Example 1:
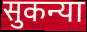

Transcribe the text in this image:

सुकन्या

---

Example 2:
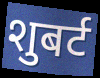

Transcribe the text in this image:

शुबर्ट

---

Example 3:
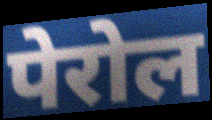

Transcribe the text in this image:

पेरोल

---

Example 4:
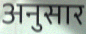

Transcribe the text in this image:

अनुसार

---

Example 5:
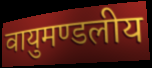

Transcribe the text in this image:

वायुमण्डलीय